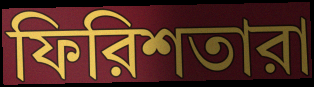
ফিরিশতারা